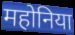
महोनिया